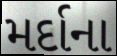
મર્દાના